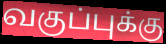
வகுப்புக்கு